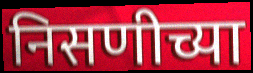
निसणीच्या